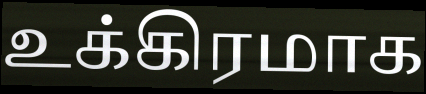
உக்கிரமாக